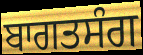
ਬਾਗਤਸੰਗ